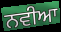
ਨਵੀਆ